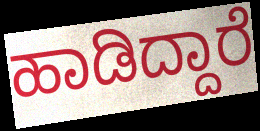
ಹಾಡಿದ್ದಾರೆ